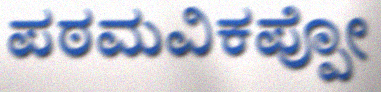
ಪಠಮವಿಕಪ್ಪೋ